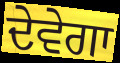
ਦੇਵੇਗਾ